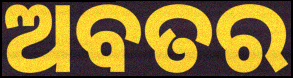
ଅବତର